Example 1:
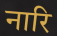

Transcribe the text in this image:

नारि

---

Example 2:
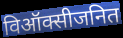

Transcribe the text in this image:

विऑक्सीजनित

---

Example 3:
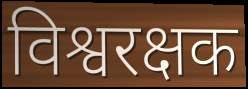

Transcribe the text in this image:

विश्वरक्षक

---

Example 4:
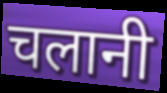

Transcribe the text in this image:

चलानी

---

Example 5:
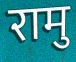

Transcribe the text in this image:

रामु